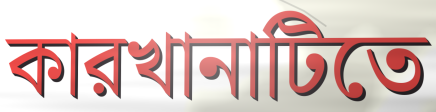
কারখানাটিতে